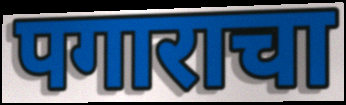
पगाराचा